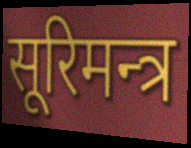
सूरिमन्त्र